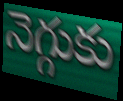
నెగ్గుకు